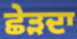
ਛੇੜਦਾ